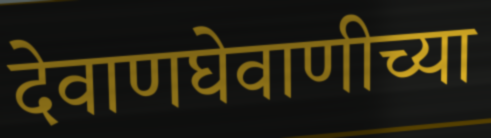
देवाणघेवाणीच्या